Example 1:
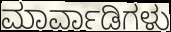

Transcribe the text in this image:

ಮಾರ್ವಾಡಿಗಳು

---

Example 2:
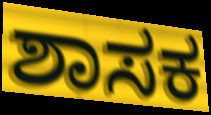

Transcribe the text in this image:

ಶಾಸಕ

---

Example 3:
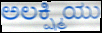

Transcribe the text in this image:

ಅಲಕ್ಷ್ಮಿಯು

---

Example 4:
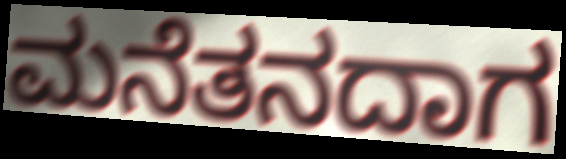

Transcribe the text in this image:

ಮನೆತನದಾಗ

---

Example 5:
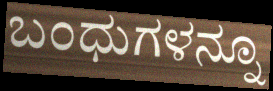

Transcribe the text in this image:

ಬಂಧುಗಳನ್ನೂ